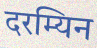
दरम्यिन